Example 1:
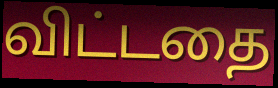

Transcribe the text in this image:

விட்டதை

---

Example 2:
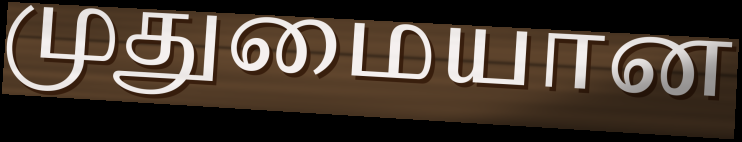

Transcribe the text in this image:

முதுமையான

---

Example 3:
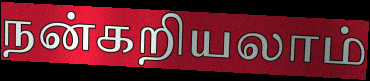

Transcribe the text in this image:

நன்கறியலாம்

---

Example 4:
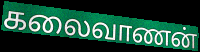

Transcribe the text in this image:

கலைவாணன்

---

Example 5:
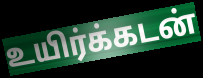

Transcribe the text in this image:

உயிர்க்கடன்